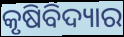
କୃଷିବିଦ୍ୟାର